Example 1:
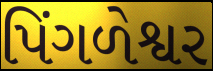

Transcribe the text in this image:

પિંગળેશ્વર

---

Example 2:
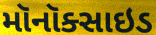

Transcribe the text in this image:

મૉનૉક્સાઇડ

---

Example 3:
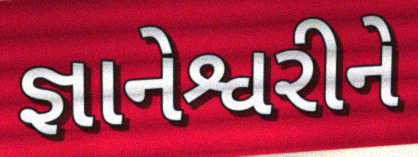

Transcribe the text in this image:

જ્ઞાનેશ્વરીને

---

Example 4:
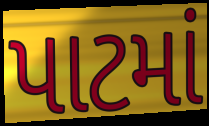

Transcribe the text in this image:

પાટમાં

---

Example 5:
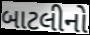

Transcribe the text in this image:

બાટલીનો